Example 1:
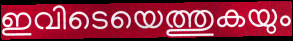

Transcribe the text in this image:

ഇവിടെയെത്തുകയും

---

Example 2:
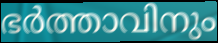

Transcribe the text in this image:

ഭർത്താവിനും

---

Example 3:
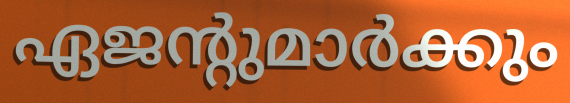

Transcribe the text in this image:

ഏജന്റുമാർക്കും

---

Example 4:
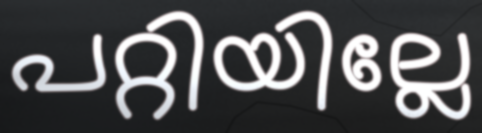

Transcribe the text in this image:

പറ്റിയില്ലേ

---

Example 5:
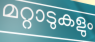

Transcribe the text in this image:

മറ്റാടുകളും